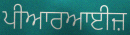
ਪੀਆਰਆਈਜ਼